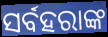
ସର୍ବହରାଙ୍କ